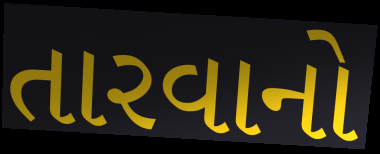
તારવાનો